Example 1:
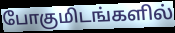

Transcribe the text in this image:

போகுமிடங்களில்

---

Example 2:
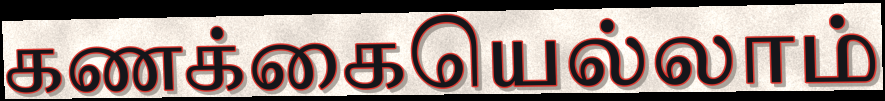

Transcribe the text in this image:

கணக்கையெல்லாம்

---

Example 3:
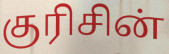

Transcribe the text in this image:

குரிசின்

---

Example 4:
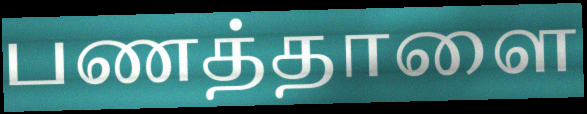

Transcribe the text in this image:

பணத்தாளை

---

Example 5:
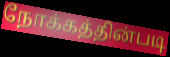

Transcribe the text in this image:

நோக்கத்தின்படி